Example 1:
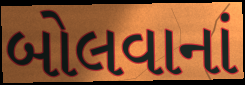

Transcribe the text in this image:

બોલવાનાં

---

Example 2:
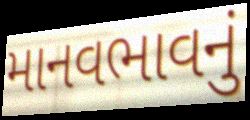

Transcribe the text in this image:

માનવભાવનું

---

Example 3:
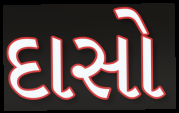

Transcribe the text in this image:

દાસો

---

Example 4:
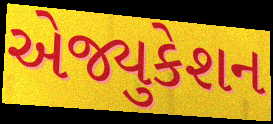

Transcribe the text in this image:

એજ્યુકેશન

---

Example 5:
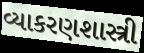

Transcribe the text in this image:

વ્યાકરણશાસ્ત્રી